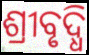
ଶ୍ରୀବୃଦ୍ଧି